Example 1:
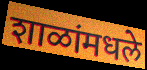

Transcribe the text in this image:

शाळांमधले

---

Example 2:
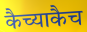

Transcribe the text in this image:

कैच्याकैच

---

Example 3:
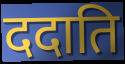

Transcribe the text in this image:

ददाति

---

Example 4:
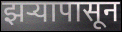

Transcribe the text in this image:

झऱ्यापासून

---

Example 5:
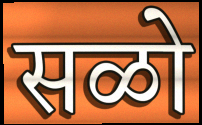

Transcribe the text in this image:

सळो